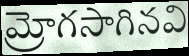
మ్రోగసాగినవి